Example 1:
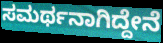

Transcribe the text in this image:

ಸಮರ್ಥನಾಗಿದ್ದೇನೆ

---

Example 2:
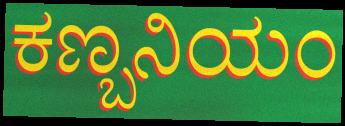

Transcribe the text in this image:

ಕಣ್ಬನಿಯಂ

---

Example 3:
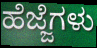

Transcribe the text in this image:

ಹೆಜ್ಜೆಗಳು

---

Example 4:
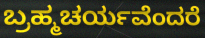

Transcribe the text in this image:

ಬ್ರಹ್ಮಚರ್ಯವೆಂದರೆ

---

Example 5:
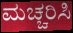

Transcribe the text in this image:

ಮಚ್ಚರಿಸಿ